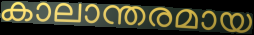
കാലാന്തരമായ